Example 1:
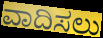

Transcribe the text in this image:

ವಾದಿಸಲು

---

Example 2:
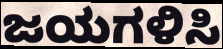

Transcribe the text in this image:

ಜಯಗಳಿಸಿ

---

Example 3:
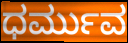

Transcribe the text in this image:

ಧರ್ಮುವ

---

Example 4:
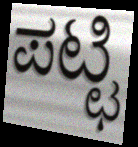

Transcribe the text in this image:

ಪಟ್ಟಿ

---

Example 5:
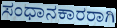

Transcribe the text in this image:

ಸಂಧಾನಕಾರರಾಗಿ